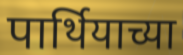
पार्थियाच्या